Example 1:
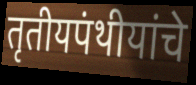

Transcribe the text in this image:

तृतीयपंथीयांचे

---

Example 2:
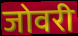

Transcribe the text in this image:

जोवरी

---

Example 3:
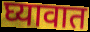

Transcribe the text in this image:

घ्यावात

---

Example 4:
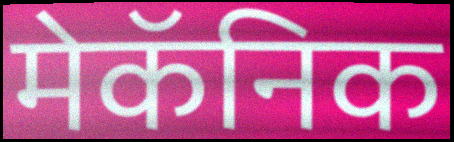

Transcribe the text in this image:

मेकॅनिक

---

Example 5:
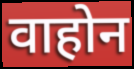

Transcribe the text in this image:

वाहोन